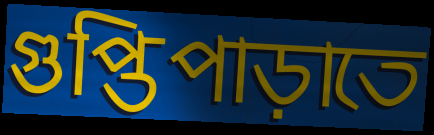
গুপ্তিপাড়াতে